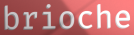
brioche